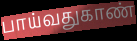
பாய்வதுகாண்